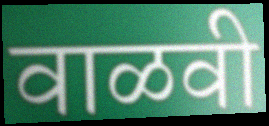
वाळवी